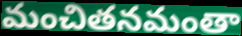
మంచితనమంతా